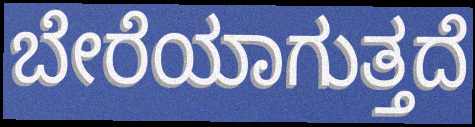
ಬೇರೆಯಾಗುತ್ತದೆ